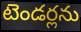
టెండర్లను